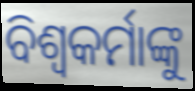
ବିଶ୍ଵକର୍ମାଙ୍କୁ